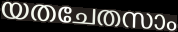
യതചേതസാം